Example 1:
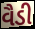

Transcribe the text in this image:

વૈડી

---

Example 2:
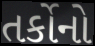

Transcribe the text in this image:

તર્કોનો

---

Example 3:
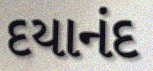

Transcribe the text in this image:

દયાનંદ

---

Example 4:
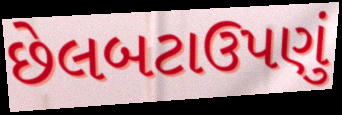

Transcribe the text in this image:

છેલબટાઉપણું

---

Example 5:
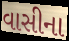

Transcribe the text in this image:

વાસીના